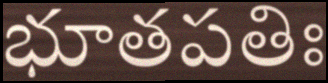
భూతపతిః